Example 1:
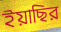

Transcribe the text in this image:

ইয়াছির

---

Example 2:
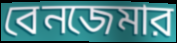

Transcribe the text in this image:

বেনজেমার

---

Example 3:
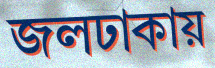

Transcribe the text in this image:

জলঢাকায়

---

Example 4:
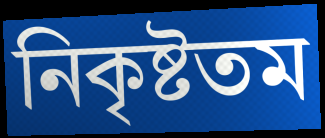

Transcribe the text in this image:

নিকৃষ্টতম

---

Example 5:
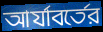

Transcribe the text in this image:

আর্যাবর্তের